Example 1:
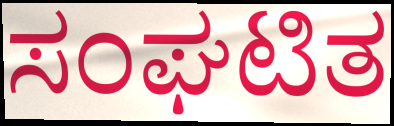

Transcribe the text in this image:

ಸಂಘಟಿತ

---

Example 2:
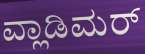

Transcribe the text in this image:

ವ್ಲಾಡಿಮರ್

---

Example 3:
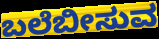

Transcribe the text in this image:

ಬಲೆಬೀಸುವ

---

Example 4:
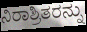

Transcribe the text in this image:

ನಿರಾಶ್ರಿತರನ್ನು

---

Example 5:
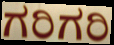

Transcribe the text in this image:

ಗರಿಗರಿ